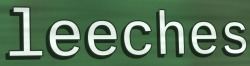
leeches